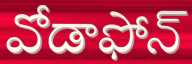
వోడాఫోన్